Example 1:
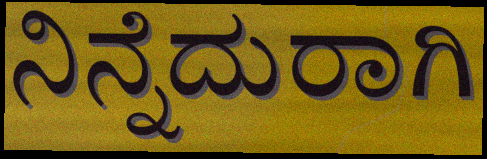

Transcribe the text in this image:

ನಿನ್ನೆದುರಾಗಿ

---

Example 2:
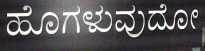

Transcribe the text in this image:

ಹೊಗಳುವುದೋ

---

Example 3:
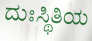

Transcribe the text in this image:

ದುಃಸ್ಥಿತಿಯ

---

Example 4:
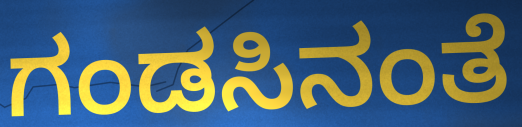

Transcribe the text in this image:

ಗಂಡಸಿನಂತೆ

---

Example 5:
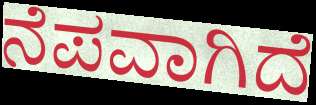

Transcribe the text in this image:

ನೆಪವಾಗಿದೆ